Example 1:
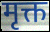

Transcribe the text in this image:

मृक्त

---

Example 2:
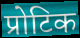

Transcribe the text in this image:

प्रोटिक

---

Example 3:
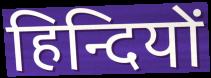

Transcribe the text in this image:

हिन्दियों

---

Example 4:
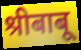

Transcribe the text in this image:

श्रीबाबू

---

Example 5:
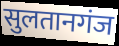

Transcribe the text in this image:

सुलतानगंज